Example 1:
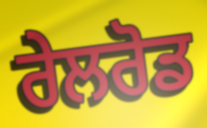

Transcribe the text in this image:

ਰੇਲਰੋਡ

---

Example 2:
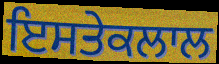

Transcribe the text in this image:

ਇਸਤੇਕਲਾਲ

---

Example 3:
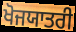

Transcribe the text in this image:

ਖੋਜਯਾਤਰੀ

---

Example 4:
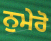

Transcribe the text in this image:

ਨੁਮੇਰੋ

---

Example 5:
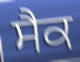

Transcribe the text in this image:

ਸੈਕ